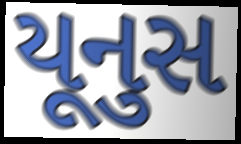
યૂનુસ